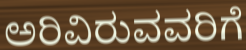
ಅರಿವಿರುವವರಿಗೆ